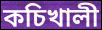
কচিখালী